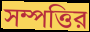
সম্পত্তির